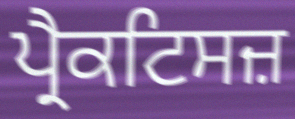
ਪ੍ਰੈਕਟਿਸਜ਼